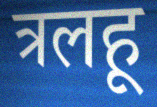
त्रलहू